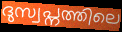
ദുസ്വപ്നത്തിലെ